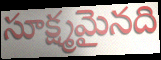
సూక్ష్మమైనది